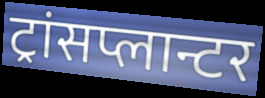
ट्रांसप्लान्टर